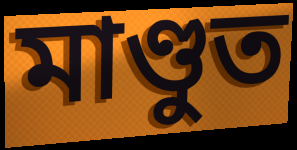
মাণ্ডুত